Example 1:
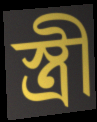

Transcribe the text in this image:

স্ত্রী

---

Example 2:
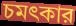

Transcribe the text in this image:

চমৎকার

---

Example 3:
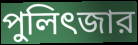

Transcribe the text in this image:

পুলিৎজার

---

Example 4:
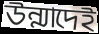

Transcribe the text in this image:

উন্মাদেই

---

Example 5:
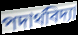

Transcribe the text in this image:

পদার্থবিদ্যা